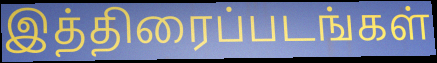
இத்திரைப்படங்கள்